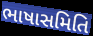
ભાષાસમિતિ